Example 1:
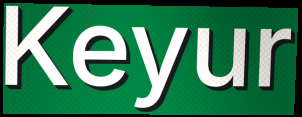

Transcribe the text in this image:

Keyur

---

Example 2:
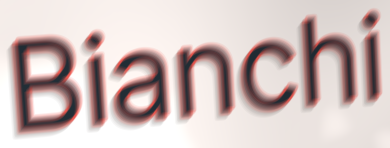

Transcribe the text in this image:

Bianchi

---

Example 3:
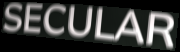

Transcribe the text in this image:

SECULAR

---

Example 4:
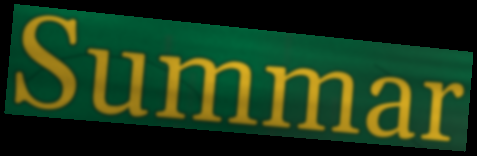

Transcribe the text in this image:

Summar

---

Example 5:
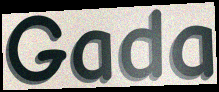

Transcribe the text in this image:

Gada